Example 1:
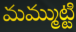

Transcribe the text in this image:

మమ్ముట్టి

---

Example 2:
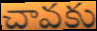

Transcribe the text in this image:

చావకు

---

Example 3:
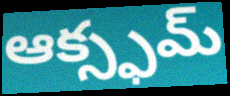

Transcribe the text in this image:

ఆక్స్ఫమ్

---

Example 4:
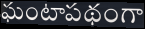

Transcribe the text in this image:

ఘంటాపథంగా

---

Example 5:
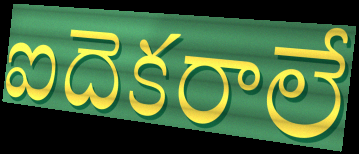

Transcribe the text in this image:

ఐదెకరాలే